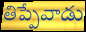
తిప్పేవాడు